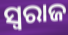
ସ୍ବରାଜ